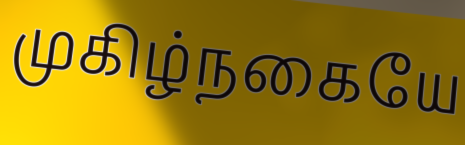
முகிழ்நகையே